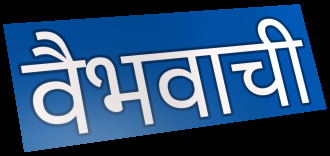
वैभवाची